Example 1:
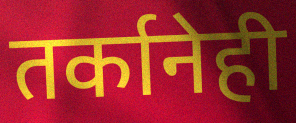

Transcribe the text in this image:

तर्कानेही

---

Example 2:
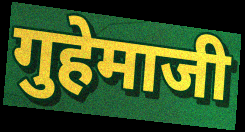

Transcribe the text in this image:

गुहेमाजी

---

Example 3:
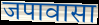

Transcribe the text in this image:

जपावासा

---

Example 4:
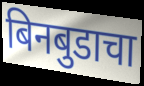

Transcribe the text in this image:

बिनबुडाचा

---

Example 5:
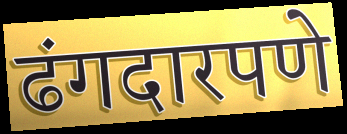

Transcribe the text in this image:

ढंगदारपणे